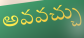
అవవచ్చు